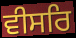
ਵੀਸਰਿ